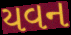
યવન